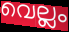
വെല്ലം